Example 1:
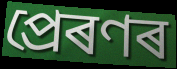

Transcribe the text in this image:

প্ৰেৰণৰ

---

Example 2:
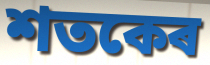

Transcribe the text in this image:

শতকেৰ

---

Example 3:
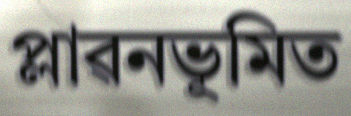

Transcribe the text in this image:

প্লাৱনভূমিত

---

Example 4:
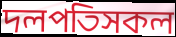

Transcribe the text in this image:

দলপতিসকল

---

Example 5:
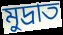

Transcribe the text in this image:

মুদ্ৰাত